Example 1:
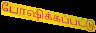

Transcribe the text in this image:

போஷிக்கப்பட்டு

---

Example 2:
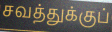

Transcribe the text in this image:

சவத்துக்குப்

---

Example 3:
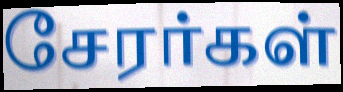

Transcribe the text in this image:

சேரர்கள்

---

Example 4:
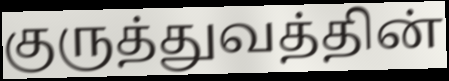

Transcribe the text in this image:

குருத்துவத்தின்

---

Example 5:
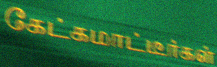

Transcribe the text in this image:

கேட்கமாட்டீர்கள்